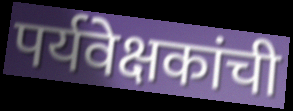
पर्यवेक्षकांची